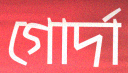
গোর্দা